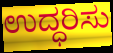
ಉದ್ಧರಿಸು